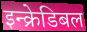
इन्क्रेडिबल